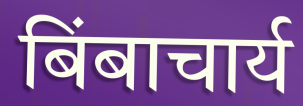
बिंबाचार्य